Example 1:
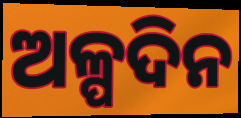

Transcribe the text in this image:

ଅଳ୍ପଦିନ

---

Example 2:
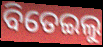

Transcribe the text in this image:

ବିତେଇଲୁ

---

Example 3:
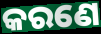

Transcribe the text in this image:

କରଣେ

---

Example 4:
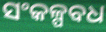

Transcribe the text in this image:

ସଂକଳ୍ପବଧ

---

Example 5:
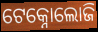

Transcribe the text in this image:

ଟେକ୍ନୋଲୋଜି